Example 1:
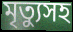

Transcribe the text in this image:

মৃত্যুসহ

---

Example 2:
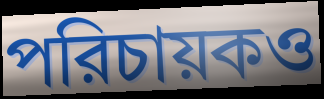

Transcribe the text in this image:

পরিচায়কও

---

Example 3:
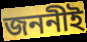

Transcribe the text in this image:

জননীই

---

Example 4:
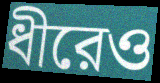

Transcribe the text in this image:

ধীরেও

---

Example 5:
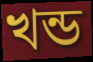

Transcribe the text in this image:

খন্ড